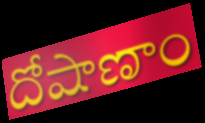
దోషాణాం